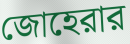
জোহেরার